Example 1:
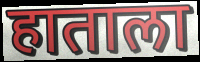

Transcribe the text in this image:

हाताला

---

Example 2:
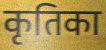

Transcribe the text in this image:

कृतिका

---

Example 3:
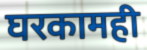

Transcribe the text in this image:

घरकामही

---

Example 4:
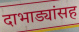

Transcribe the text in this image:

दाभाड्यांसह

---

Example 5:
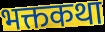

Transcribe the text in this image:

भक्तकथा